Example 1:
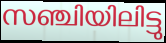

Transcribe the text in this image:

സഞ്ചിയിലിട്ടു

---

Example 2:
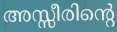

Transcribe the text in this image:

അസ്സീരിന്റെ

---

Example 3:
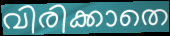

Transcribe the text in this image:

വിരിക്കാതെ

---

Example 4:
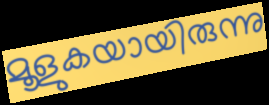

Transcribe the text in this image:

മൂളുകയായിരുന്നു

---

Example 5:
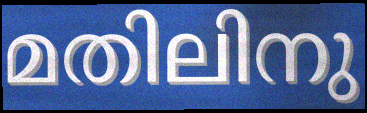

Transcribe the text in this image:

മതിലിനു